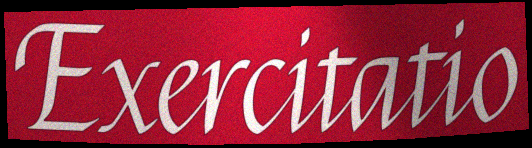
Exercitatio